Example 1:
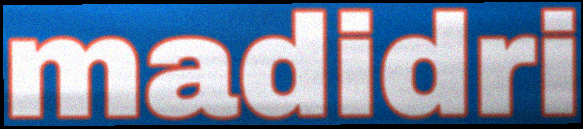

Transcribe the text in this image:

madidri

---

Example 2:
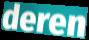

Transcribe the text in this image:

deren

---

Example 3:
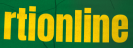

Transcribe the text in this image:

rtionline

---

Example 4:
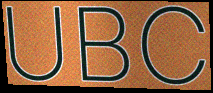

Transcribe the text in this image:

UBC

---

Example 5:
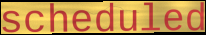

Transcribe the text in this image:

scheduled